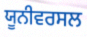
ਯੂਨੀਵਰਸਲ